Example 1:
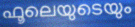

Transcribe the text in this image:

ഫൂലെയുടെയും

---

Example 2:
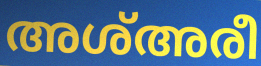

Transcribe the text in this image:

അശ്അരീ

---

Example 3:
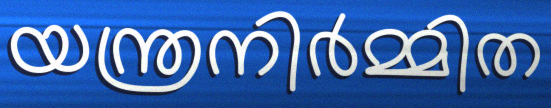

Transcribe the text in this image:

യന്ത്രനിർമ്മിത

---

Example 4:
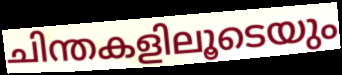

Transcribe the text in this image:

ചിന്തകളിലൂടെയും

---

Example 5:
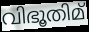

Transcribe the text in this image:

വിഭൂതിമ്